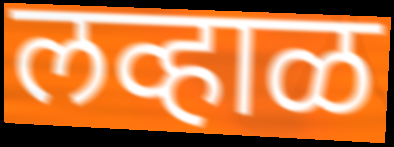
लव्हाळ